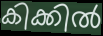
കിക്കിൽ